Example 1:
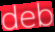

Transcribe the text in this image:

deb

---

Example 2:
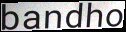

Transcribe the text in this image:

bandho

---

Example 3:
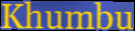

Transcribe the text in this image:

Khumbu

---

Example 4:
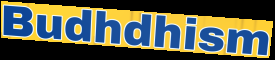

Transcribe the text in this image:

Budhdhism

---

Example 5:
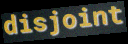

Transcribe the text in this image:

disjoint